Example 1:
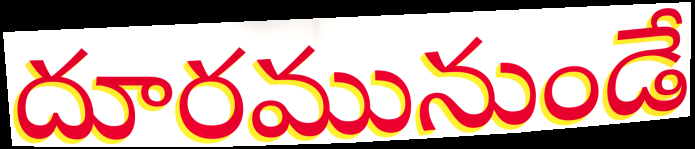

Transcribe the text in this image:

దూరమునుండే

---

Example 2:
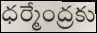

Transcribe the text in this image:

ధర్మేంద్రకు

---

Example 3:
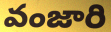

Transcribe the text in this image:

వంజారి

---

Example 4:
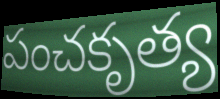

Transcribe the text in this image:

పంచకృత్య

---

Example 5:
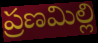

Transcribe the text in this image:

ప్రణమిల్లి